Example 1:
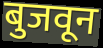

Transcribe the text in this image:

बुजवून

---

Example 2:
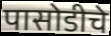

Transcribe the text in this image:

पासोडीचे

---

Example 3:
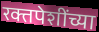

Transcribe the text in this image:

रक्तपेशींच्या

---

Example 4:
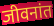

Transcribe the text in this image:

जीवनांत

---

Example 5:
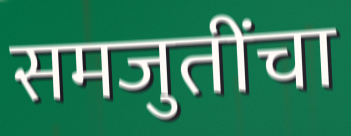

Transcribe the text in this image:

समजुतींचा